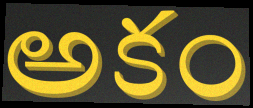
అకం